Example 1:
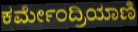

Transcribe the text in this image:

ಕರ್ಮೇಂದ್ರಿಯಾಣಿ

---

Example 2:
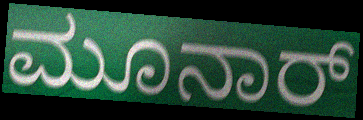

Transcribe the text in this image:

ಮೂನಾರ್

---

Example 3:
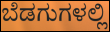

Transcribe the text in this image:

ಬೆಡಗುಗಳಲ್ಲಿ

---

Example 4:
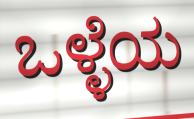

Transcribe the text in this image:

ಒಳ್ಳೆಯ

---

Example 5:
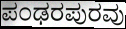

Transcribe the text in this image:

ಪಂಢರಪುರವು